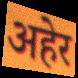
अहेर